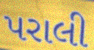
પરાલી